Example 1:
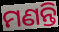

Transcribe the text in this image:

ମଣନ୍ତି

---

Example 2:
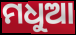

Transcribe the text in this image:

ମଧୁଆ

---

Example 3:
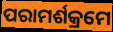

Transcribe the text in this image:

ପରାମର୍ଶକ୍ରମେ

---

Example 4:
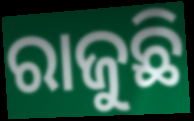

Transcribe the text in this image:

ରାଜୁଛି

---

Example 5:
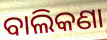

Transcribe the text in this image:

ବାଲିକଣା